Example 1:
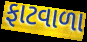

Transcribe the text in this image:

ફાટવાળા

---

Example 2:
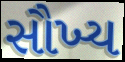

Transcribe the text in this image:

સૌખ્ય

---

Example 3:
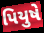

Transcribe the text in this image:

પિયુષે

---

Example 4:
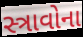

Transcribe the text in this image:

સ્ત્રાવોના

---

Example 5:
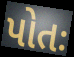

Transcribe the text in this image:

પોતઃ